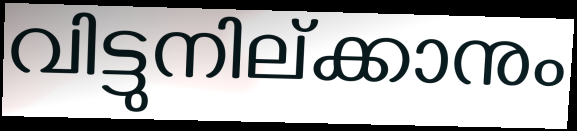
വിട്ടുനില്ക്കാനും